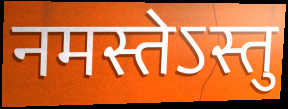
नमस्तेऽस्तु